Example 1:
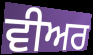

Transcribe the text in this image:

ਵੀਅਰ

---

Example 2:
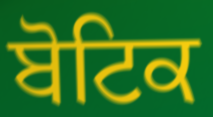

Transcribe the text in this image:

ਬੋਟਿਕ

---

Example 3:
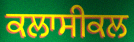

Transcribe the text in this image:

ਕਲਾਸੀਕਲ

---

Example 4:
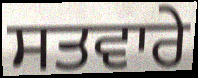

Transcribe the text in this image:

ਸਤਵਾਰੇ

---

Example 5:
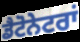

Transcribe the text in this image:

ਡੈਟੋਨੇਟਰਾਂ